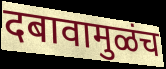
दबावामुळंच